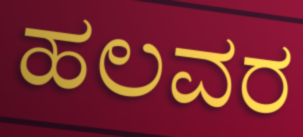
ಹಲವರ